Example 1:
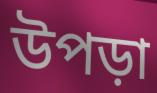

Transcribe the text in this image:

উপড়া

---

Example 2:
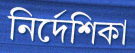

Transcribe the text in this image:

নির্দেশিকা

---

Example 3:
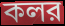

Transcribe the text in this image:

কলর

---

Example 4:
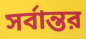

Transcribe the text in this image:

সর্বান্তর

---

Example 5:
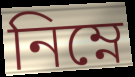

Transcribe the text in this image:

নিম্নে